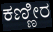
ಕಣ್ಣೀರ